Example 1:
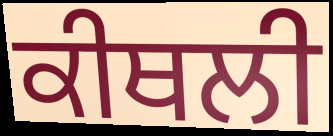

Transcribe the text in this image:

ਕੀਥਲੀ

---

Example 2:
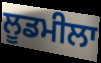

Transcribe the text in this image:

ਲੂਡਮੀਲਾ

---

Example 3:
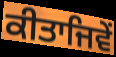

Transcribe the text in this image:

ਕੀਤਾਜਿਵੇਂ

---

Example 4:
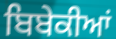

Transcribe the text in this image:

ਬਿਬੇਕੀਆਂ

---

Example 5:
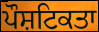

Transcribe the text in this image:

ਪੌਸ਼ਟਿਕਤਾ